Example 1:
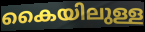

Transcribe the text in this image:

കൈയിലുള്ള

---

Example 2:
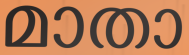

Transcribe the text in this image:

മാതാ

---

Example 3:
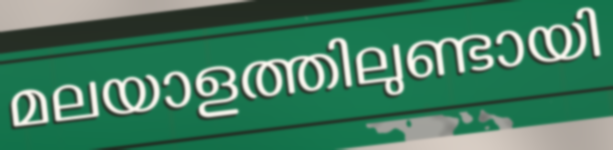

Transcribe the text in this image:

മലയാളത്തിലുണ്ടായി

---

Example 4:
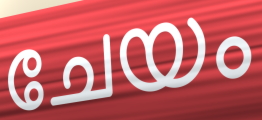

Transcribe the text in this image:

ചേയം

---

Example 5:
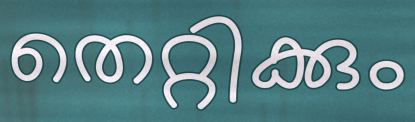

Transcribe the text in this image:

തെറ്റിക്കും